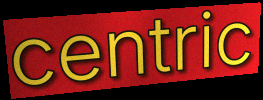
centric